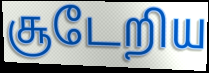
சூடேறிய